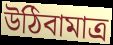
উঠিবামাত্র